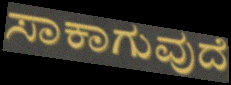
ಸಾಕಾಗುವುದೆ